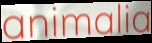
animalia